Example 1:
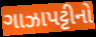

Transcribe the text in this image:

ગાઝાપટ્ટીનો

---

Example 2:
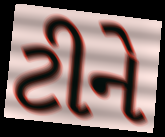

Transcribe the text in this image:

ટીને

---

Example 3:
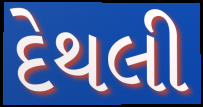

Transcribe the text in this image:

દેથલી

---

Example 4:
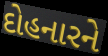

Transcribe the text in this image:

દોહનારને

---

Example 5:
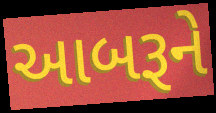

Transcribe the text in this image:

આબરૂને